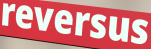
reversus